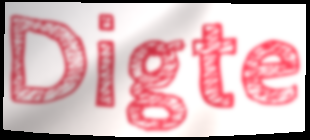
Digte